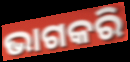
ଭାଗକରି